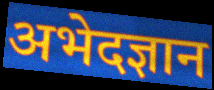
अभेदज्ञान